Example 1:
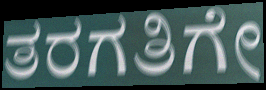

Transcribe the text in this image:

ತರಗತಿಗೇ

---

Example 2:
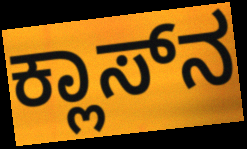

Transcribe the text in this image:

ಕ್ಲಾಸ್‌ನ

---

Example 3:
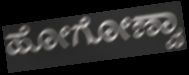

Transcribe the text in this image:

ಹೋಗೋಣ್ವಾ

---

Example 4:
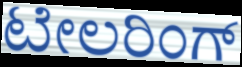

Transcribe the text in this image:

ಟೇಲರಿಂಗ್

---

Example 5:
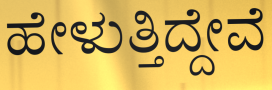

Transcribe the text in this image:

ಹೇಳುತ್ತಿದ್ದೇವೆ